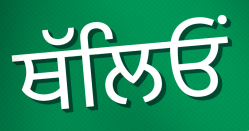
ਥੱਲਿਓਂ